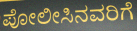
ಪೋಲೀಸಿನವರಿಗೆ